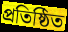
প্ৰতিষ্ঠিত